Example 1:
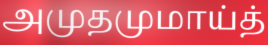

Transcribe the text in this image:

அமுதமுமாய்த்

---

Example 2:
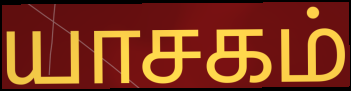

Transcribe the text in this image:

யாசகம்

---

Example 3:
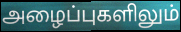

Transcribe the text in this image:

அழைப்புகளிலும்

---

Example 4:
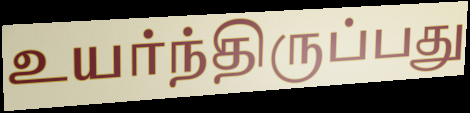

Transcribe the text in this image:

உயர்ந்திருப்பது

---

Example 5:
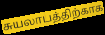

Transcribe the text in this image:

சுயலாபத்திற்காக